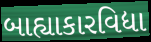
બાહ્યાકારવિદ્યા